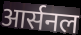
आर्सनल